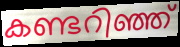
കണ്ടറിഞ്ഞ്